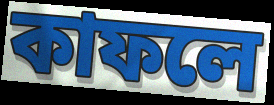
কাফলে